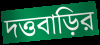
দত্তবাড়ির